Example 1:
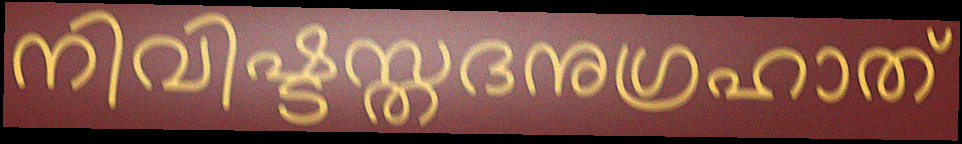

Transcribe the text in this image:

നിവിഷ്ടസ്തദനുഗ്രഹാത്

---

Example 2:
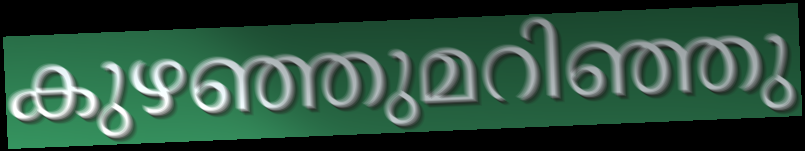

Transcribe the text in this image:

കുഴഞ്ഞുമറിഞ്ഞു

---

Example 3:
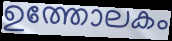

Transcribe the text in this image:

ഉത്തോലകം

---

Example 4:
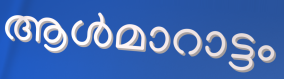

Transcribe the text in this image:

ആൾമാറാട്ടം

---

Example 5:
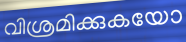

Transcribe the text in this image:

വിശ്രമിക്കുകയോ